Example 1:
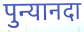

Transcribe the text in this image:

पुन्यानदा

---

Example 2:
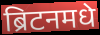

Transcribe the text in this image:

ब्रिटनमधे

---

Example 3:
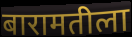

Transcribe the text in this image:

बारामतीला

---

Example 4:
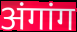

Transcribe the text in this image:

अंगांग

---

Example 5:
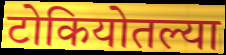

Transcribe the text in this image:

टोकियोतल्या